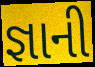
જ્ઞાની